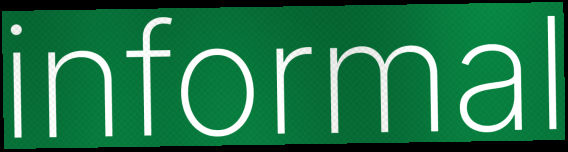
informal